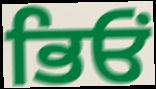
ਭਿਓਂ